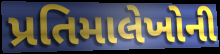
પ્રતિમાલેખોની